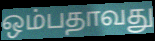
ஒம்பதாவது